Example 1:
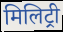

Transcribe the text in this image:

मिलिट्री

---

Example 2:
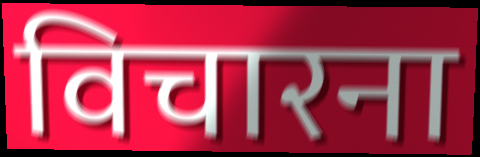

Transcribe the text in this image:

विचारना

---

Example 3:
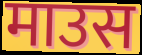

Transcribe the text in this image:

माउस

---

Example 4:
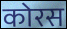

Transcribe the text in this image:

कोरस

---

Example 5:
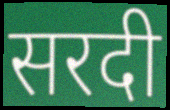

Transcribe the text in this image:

सरदी